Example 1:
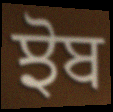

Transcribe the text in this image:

ਝੋਬ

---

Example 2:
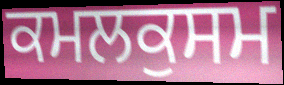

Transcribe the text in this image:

ਕਮਲਕੁਸਮ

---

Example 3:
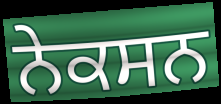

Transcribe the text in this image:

ਨੇਕਸਨ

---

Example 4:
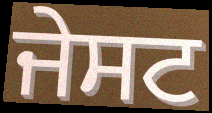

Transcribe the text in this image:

ਜੇਸਟ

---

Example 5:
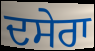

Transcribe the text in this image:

ਦਸੇਰਾ